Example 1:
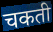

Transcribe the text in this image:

चकती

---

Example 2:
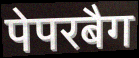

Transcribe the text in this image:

पेपरबैग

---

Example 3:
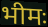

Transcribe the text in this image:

भीमः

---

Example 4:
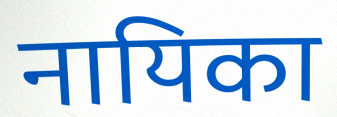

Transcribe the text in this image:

नायिका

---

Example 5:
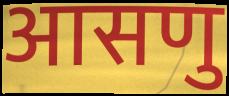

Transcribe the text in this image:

आसणु